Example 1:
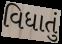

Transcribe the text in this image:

વિધાતું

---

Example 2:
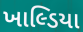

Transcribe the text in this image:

ખાલ્ડિયા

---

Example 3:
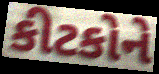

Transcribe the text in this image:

કીટકોને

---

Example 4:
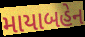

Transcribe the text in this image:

માયાબહેન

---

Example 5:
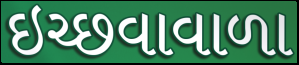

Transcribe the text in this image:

ઇચ્છવાવાળા